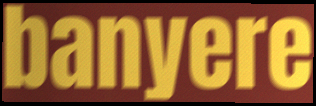
banyere